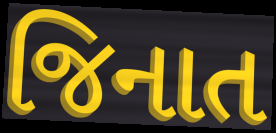
જિનાત